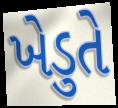
ખેડુતે